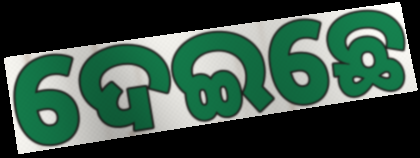
ଦେଇଛେ